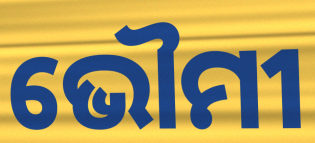
ଭୌମୀ